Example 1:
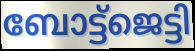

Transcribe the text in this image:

ബോട്ട്ജെട്ടി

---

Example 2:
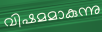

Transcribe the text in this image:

വിഷമമാകുന്നു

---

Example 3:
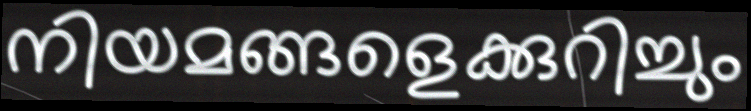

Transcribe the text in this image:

നിയമങ്ങളെക്കുറിച്ചും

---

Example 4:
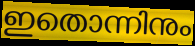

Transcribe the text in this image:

ഇതൊന്നിനും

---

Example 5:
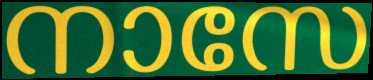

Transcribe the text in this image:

നാസേ